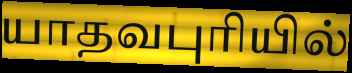
யாதவபுரியில்